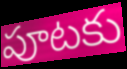
పూటకు